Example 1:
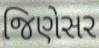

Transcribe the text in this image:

જિણેસર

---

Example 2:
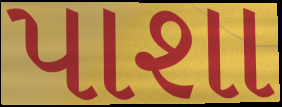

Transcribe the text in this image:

પાશા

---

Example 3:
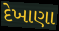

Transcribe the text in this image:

દેખાણા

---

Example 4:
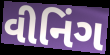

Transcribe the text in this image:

વીનિંગ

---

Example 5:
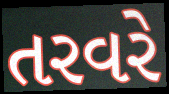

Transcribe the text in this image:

તરવરે